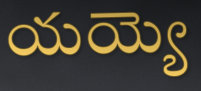
యయ్యె